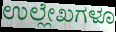
ಉಲ್ಲೇಖಗಳೂ